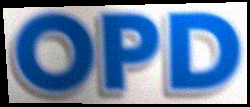
OPD